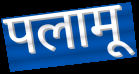
पलामू